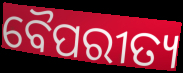
ବୈପରୀତ୍ୟ